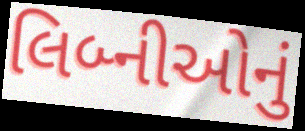
લિબ્નીઓનું